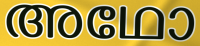
അഥോ